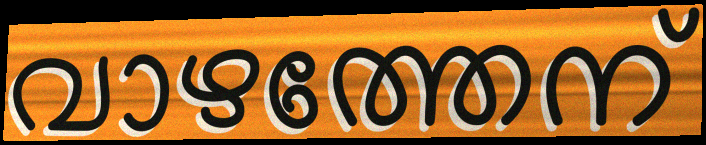
വാഴത്തേന്